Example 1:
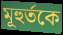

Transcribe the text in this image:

মূহুর্তকে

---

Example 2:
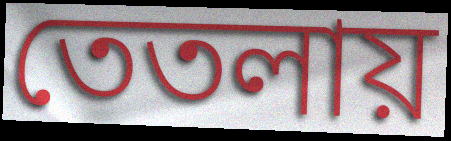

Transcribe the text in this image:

তেতলায়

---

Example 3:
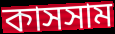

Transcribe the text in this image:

কাসসাম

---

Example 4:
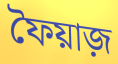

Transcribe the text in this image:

ফৈয়াজ়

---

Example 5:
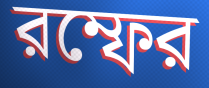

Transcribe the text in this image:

রম্ফের